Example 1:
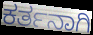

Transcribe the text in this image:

ಕರ್ತನಾಗಿ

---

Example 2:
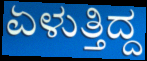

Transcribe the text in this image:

ಏಳುತ್ತಿದ್ದ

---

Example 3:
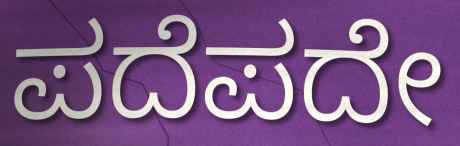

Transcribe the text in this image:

ಪದೆಪದೇ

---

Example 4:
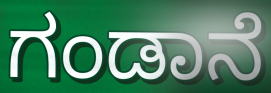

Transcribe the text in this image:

ಗಂಡಾನೆ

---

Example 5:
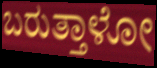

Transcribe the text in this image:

ಬರುತ್ತಾಳೋ